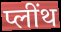
प्लींथ